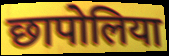
छापोलिया